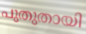
പുതുതായി